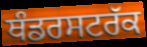
ਥੰਡਰਸਟਰੱਕ